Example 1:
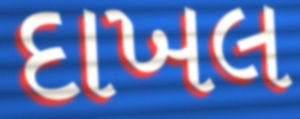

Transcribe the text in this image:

દાખલ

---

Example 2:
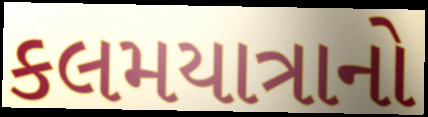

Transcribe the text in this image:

કલમયાત્રાનો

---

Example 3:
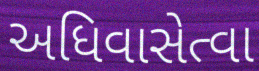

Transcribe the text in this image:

અધિવાસેત્વા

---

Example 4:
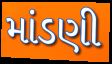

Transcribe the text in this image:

માંડણી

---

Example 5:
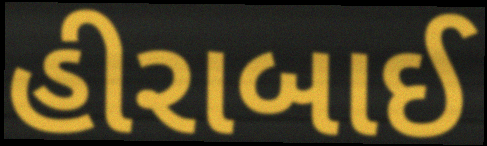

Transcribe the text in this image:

હીરાબાઈ